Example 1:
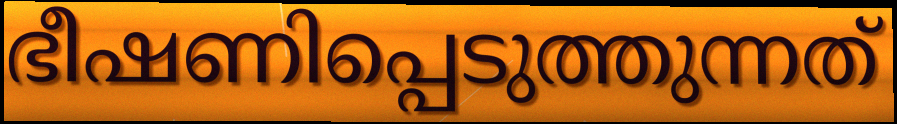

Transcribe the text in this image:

ഭീഷണിപ്പെടുത്തുന്നത്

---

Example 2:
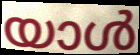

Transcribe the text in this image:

യാൾ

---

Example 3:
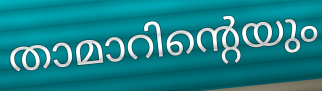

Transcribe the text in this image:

താമാറിന്റെയും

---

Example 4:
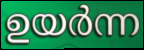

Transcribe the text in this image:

ഉയർന്ന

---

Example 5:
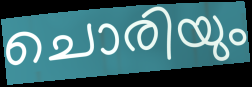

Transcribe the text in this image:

ചൊരിയും